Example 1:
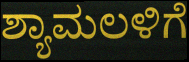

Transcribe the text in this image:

ಶ್ಯಾಮಲಳಿಗೆ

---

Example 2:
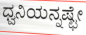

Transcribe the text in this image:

ಧ್ವನಿಯನ್ನಷ್ಟೇ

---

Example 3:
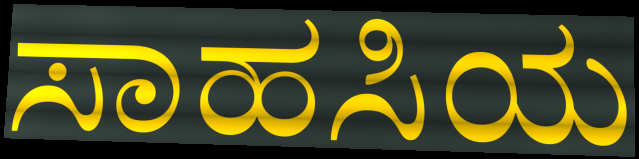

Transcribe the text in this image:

ಸಾಹಸಿಯ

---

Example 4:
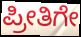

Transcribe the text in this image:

ಪ್ರೀತಿಗೇ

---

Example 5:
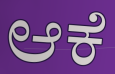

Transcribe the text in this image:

ಆಕೆ